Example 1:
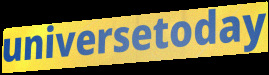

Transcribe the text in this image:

universetoday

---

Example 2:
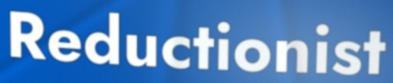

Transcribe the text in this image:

Reductionist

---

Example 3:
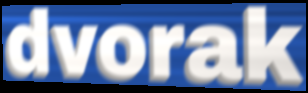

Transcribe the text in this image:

dvorak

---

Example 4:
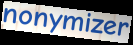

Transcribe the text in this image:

nonymizer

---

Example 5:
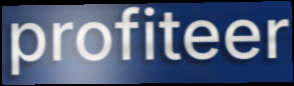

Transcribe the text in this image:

profiteer